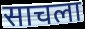
साचला